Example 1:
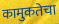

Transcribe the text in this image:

कामुकतेचा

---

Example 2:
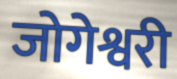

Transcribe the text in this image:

जोगेश्वरी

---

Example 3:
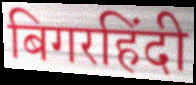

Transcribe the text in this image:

बिगरहिंदी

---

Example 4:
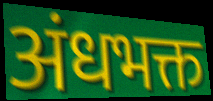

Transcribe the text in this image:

अंधभक्त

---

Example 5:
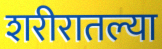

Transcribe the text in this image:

शरीरातल्या